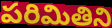
పరిమితిని